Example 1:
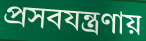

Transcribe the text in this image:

প্রসবযন্ত্রণায়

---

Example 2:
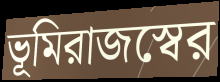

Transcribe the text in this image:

ভূমিরাজস্বের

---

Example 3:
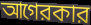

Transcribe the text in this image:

আগেরকার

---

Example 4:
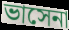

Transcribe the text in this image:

ভাসেনা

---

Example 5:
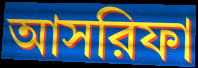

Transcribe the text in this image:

আসরিফা